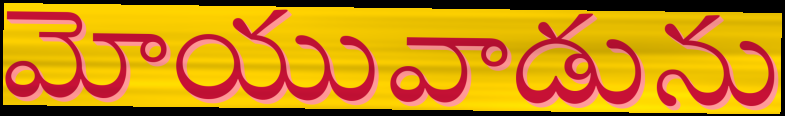
మోయువాడును